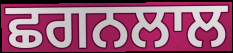
ਛਗਨਲਾਲ